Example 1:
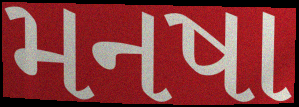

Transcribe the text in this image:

મનષા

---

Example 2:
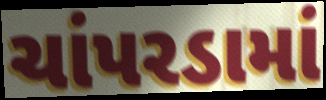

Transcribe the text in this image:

ચાંપરડામાં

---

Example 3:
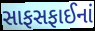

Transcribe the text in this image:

સાફસફાઈનાં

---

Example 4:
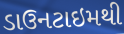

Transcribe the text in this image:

ડાઉનટાઇમથી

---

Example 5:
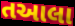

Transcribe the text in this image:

તઆલા